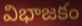
విభాజకం